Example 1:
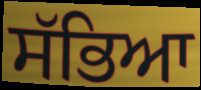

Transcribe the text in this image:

ਸੱਭਿਆ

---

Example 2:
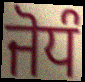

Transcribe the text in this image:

ਜੋਧੰ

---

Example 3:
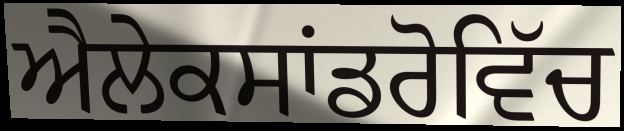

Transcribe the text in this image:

ਐਲੇਕਸਾਂਡਰੋਵਿੱਚ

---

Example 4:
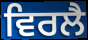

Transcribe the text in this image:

ਵਿਰਲੈ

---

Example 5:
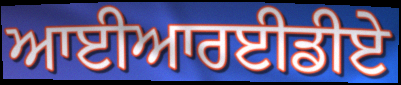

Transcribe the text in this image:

ਆਈਆਰਈਡੀਏ